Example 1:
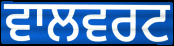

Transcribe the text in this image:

ਵਾਲਵਰਟ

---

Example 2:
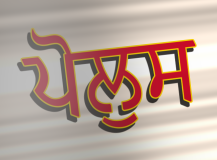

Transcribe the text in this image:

ਪੋਲੁਸ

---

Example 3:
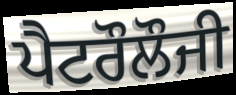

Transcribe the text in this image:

ਪੈਟਰੌਲੌਜੀ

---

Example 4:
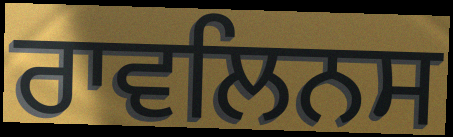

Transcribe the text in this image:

ਰਾਵਲਿਨਸ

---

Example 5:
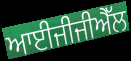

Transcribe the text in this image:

ਆਈਜੀਜੀਐੱਲ